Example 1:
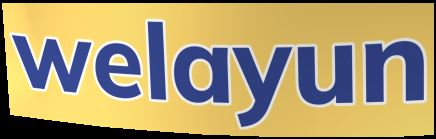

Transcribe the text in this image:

welayun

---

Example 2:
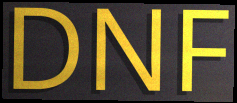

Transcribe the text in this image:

DNF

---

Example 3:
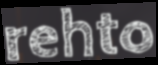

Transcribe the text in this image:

rehto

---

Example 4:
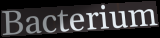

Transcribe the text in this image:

Bacterium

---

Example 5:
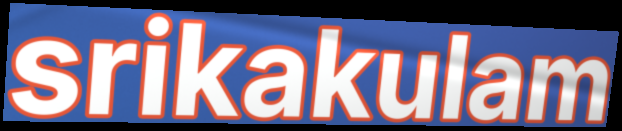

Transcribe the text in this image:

srikakulam